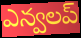
ఎన్వలప్